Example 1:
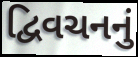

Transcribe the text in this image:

દ્વિવચનનું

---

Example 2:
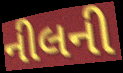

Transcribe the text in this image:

નીલની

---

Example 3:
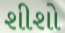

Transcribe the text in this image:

શીશો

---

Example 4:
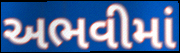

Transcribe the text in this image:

અભવીમાં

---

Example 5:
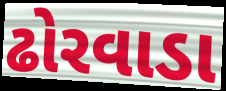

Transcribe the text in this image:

ઢોરવાડા